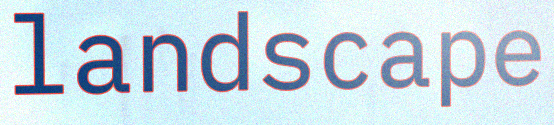
landscape